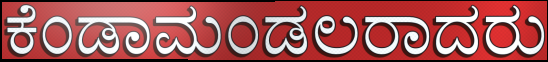
ಕೆಂಡಾಮಂಡಲರಾದರು